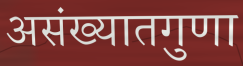
असंख्यातगुणा